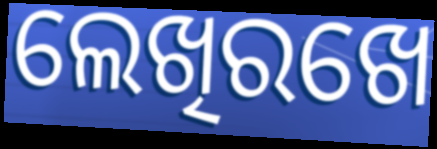
ଲେଖିରଖେ